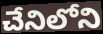
చేనిలోని